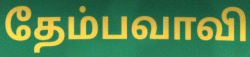
தேம்பவாவி